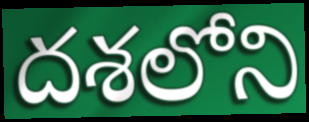
దశలోని